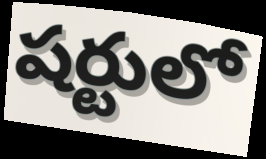
షర్టులో